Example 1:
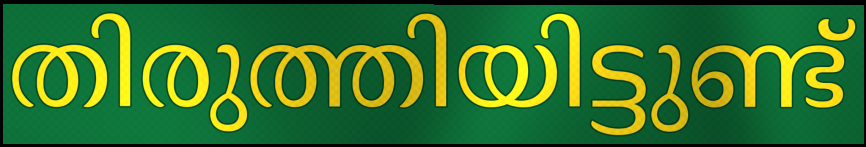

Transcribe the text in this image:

തിരുത്തിയിട്ടുണ്ട്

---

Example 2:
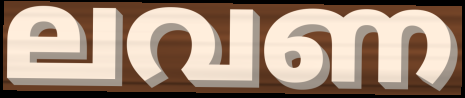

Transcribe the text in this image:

ലവണ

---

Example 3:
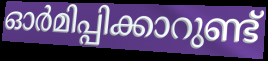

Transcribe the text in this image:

ഓർമിപ്പിക്കാറുണ്ട്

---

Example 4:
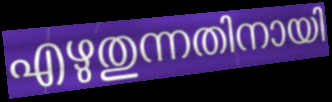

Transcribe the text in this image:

എഴുതുന്നതിനായി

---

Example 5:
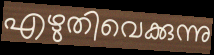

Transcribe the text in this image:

എഴുതിവെക്കുന്നു